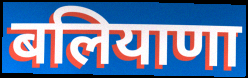
बलियाणा